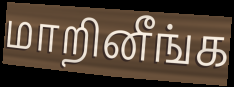
மாறினீங்க